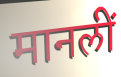
मानलीं